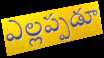
ఎల్లప్పడూ